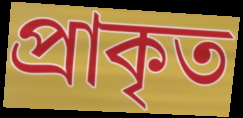
প্রাকৃত